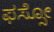
ಫಸ್ಸೋ